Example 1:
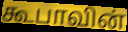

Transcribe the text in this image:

கூபாவின்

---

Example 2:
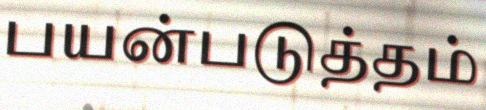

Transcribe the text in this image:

பயன்படுத்தம்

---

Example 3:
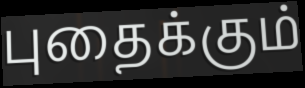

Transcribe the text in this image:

புதைக்கும்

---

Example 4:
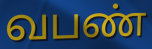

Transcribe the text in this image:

வபண்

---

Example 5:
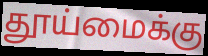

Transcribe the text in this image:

தூய்மைக்கு